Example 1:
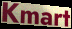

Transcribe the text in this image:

Kmart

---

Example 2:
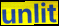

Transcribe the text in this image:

unlit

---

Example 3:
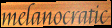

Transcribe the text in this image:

melanocratic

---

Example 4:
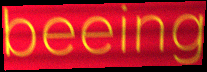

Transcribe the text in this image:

beeing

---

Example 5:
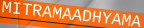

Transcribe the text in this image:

MITRAMAADHYAMA